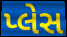
પ્લેસ